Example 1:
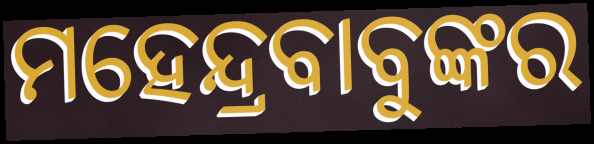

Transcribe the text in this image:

ମହେନ୍ଦ୍ରବାବୁଙ୍କର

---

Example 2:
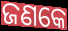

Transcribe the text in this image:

ଜଣକେ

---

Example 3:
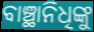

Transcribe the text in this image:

ବାଞ୍ଛାନିଧିଙ୍କୁ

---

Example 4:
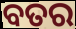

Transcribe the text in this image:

ବତର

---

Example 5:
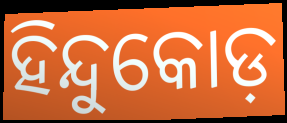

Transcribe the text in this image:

ହିନ୍ଦୁକୋଡ଼